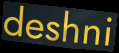
deshni